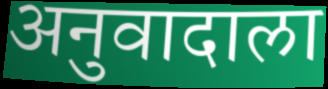
अनुवादाला